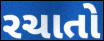
રચાતો